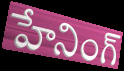
హేనింగ్